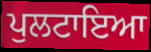
ਪੁਲਟਾਇਆ